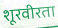
शूरवीरता